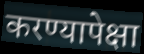
करण्यापेक्षा